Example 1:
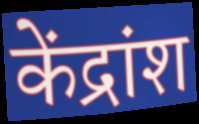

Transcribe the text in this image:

केंद्रांश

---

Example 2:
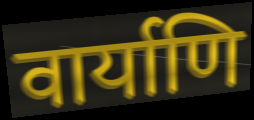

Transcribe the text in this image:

वार्याणि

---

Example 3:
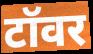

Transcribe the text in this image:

टॉवर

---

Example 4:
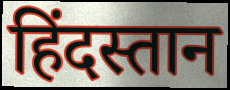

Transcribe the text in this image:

हिंदस्तान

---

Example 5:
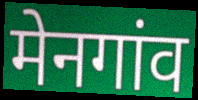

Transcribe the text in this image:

मेनगांव